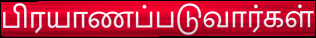
பிரயாணப்படுவார்கள்